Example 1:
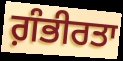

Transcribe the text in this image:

ਗ਼ੰਭੀਰਤਾ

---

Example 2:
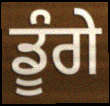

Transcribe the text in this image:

ਡੂੰਗੇ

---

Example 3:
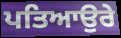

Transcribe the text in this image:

ਪਤਿਆਉਰੇ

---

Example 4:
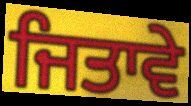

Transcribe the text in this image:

ਜਿਤਾਵੇ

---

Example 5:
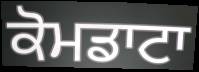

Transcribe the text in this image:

ਕੋਮਡਾਟਾ